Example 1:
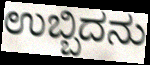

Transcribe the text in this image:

ಉಬ್ಬಿದನು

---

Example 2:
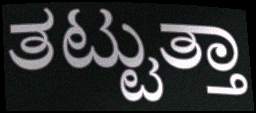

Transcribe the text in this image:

ತಟ್ಟುತ್ತಾ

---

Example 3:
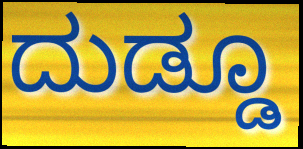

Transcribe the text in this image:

ದುಡ್ಡೂ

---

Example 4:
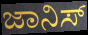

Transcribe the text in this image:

ಜಾನಿಸ್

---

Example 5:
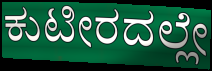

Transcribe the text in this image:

ಕುಟೀರದಲ್ಲೇ